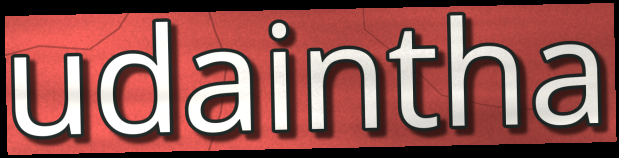
udaintha